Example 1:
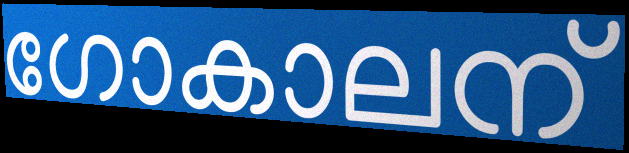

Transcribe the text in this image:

ഗോകാലന്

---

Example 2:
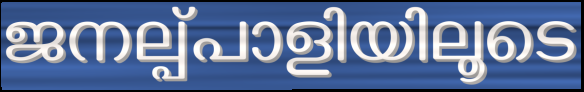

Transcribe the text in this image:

ജനല്പ്പാളിയിലൂടെ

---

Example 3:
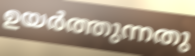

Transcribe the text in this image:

ഉയർത്തുന്നതു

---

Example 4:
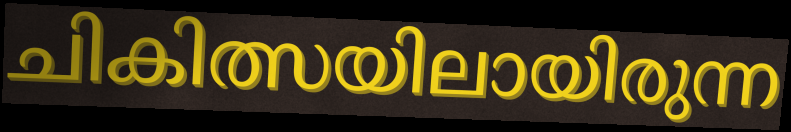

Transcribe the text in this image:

ചികിത്സയിലായിരുന്ന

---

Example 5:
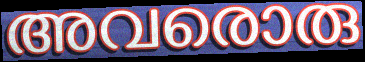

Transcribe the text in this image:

അവരൊരു